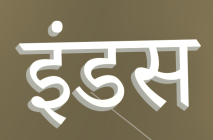
इंडस